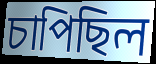
চাপিছিল